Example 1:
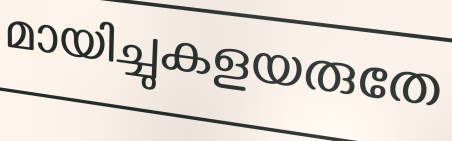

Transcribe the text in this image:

മായിച്ചുകളയരുതേ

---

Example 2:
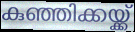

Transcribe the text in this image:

കുഞ്ഞിക്കയ്ക്ക്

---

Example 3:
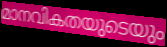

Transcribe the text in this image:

മാനവികതയുടെയും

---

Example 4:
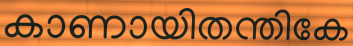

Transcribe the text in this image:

കാണായിതന്തികേ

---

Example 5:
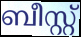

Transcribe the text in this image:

ബീസ്റ്റ്